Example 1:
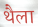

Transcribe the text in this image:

थैला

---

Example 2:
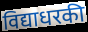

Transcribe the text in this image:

विद्याधरकी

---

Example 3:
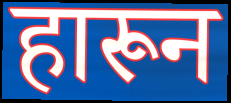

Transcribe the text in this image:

हारून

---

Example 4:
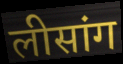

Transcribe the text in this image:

लीसांग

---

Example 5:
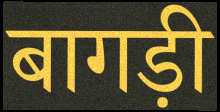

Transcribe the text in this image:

बागड़ी